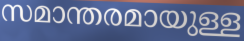
സമാന്തരമായുള്ള